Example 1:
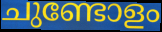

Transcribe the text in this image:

ചുണ്ടോളം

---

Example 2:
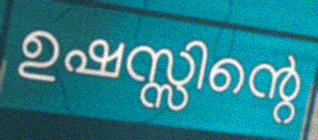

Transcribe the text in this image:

ഉഷസ്സിന്റെ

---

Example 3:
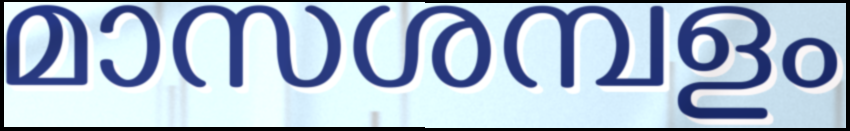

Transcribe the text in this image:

മാസശമ്പളം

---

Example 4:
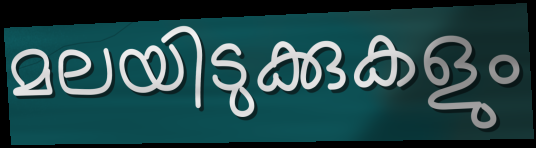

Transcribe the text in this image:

മലയിടുക്കുകളും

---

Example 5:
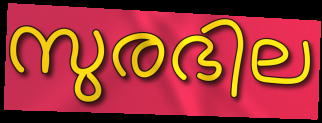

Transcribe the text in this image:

സുരഭില